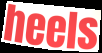
heels